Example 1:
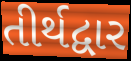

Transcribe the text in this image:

તીર્થદ્વાર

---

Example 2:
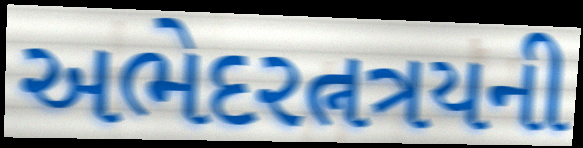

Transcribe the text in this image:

અભેદરત્નત્રયની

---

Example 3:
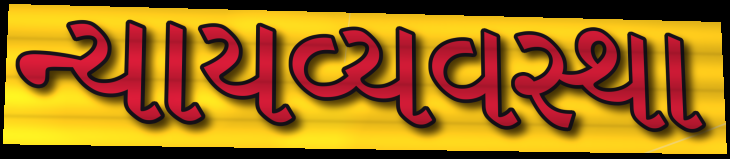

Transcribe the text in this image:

ન્યાયવ્યવસ્થા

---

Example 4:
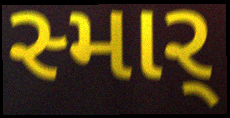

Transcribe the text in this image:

સ્માર્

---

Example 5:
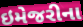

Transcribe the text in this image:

ઇમેજરીના